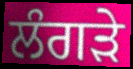
ਲੰਗੜੇ